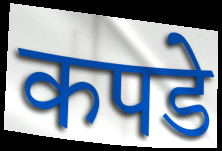
कपडे